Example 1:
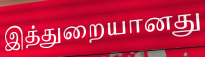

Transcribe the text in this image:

இத்துறையானது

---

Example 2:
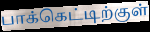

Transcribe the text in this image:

பாக்கெட்டிற்குள்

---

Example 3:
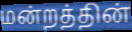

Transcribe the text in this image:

மன்றத்தின்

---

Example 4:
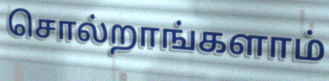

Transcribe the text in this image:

சொல்றாங்களாம்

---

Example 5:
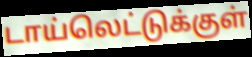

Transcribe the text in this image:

டாய்லெட்டுக்குள்